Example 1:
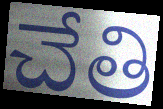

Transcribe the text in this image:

చేతి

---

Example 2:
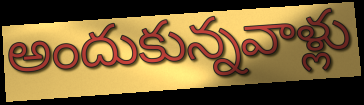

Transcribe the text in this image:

అందుకున్నవాళ్లు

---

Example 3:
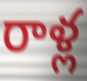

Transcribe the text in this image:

రాళ్ల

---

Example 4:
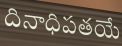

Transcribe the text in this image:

దినాధిపతయే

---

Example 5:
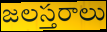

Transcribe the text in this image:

జలస్తరాలు